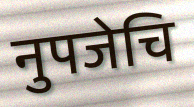
नुपजेचि